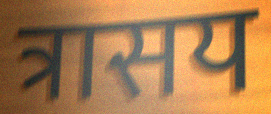
त्रासय